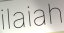
ilaiah